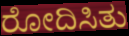
ರೋದಿಸಿತು